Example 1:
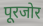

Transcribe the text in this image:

पूरजोर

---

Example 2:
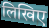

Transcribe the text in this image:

लिखिए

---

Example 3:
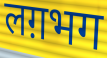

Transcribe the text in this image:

लग़भग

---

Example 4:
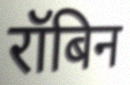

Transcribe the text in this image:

रॉबिन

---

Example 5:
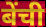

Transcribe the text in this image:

बेंची